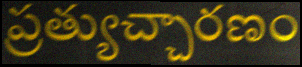
ప్రత్యుచ్చారణం